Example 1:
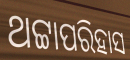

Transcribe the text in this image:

ଥଟ୍ଟାପରିହାସ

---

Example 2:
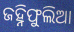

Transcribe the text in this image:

ଜହ୍ନିଫୁଲିଆ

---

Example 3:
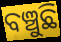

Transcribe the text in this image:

ବଞ୍ଚୁଛି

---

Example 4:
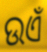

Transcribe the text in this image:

ଉଏଁ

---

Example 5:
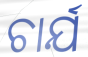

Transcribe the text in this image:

ଚାର୍ଯ